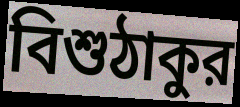
বিশুঠাকুর